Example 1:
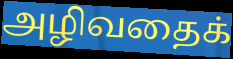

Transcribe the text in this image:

அழிவதைக்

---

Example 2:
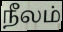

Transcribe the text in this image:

நீலம்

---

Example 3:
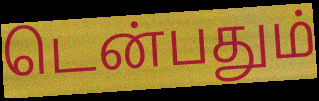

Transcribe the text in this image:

டென்பதும்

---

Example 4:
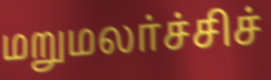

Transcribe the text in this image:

மறுமலர்ச்சிச்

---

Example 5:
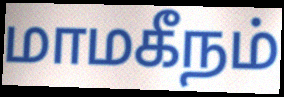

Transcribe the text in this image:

மாமகீநம்